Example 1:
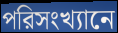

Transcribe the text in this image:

পরিসংখ্যানে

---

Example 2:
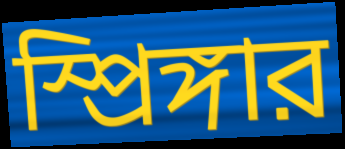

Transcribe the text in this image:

স্প্রিঙ্গার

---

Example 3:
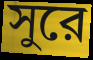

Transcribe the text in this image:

সুরে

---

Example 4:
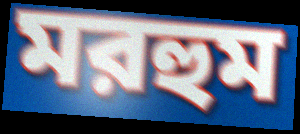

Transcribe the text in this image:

মরহুম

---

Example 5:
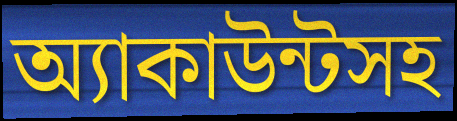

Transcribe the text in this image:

অ্যাকাউন্টসহ